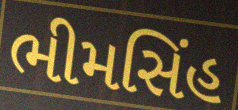
ભીમસિંહ